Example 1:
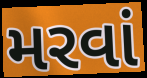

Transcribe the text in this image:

મરવાં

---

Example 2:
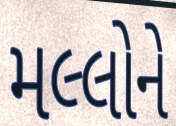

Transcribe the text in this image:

મલ્લોને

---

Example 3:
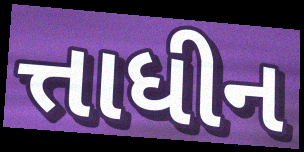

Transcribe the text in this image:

ત્તાધીન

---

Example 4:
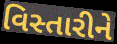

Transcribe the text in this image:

વિસ્તારીને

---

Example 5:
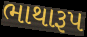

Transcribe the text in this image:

ભાથારૂપ